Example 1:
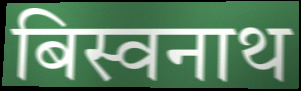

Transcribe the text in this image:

बिस्वनाथ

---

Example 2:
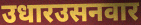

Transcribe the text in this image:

उधारउसनवार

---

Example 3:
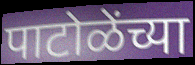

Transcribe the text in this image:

पाटोळेंच्या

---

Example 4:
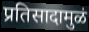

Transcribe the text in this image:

प्रतिसादामुळं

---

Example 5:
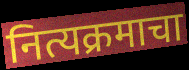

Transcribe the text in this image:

नित्यक्रमाचा